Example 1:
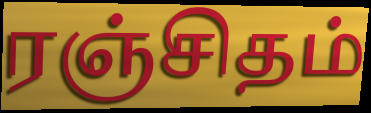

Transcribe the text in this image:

ரஞ்சிதம்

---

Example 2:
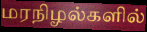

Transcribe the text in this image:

மரநிழல்களில்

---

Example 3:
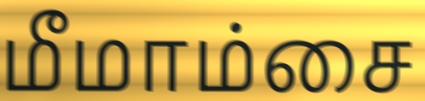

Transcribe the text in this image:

மீமாம்சை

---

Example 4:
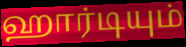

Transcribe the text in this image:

ஹார்டியும்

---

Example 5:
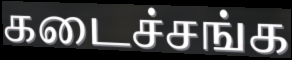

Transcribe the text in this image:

கடைச்சங்க